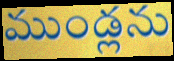
ముండ్లను